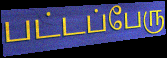
பட்டப்பேரு